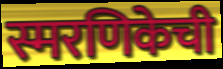
स्मरणिकेची